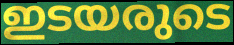
ഇടയരുടെ